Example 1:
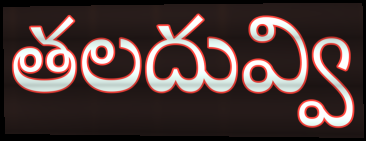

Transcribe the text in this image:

తలదువ్వి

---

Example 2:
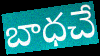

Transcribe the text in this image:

బాధచే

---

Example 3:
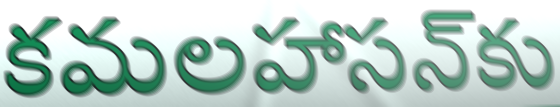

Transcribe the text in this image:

కమలహాసన్‌కు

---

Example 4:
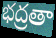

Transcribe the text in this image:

భద్రతా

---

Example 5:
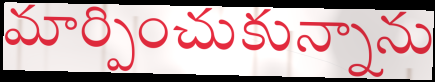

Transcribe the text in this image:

మార్పించుకున్నాను